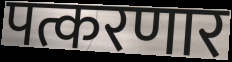
पत्करणार